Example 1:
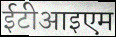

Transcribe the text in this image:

ईटीआइएम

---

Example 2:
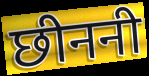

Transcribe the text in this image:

छीननी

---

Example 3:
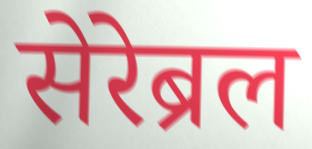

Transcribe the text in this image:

सेरेब्रल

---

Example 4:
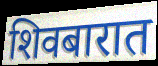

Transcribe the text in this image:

शिवबारात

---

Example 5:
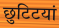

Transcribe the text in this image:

छुटिटयां